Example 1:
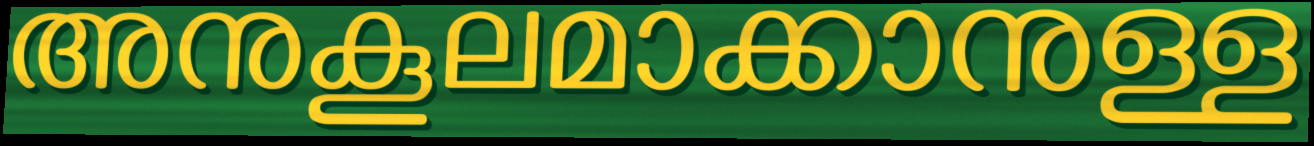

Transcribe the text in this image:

അനുകൂലമാക്കാനുള്ള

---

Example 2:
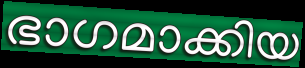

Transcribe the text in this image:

ഭാഗമാക്കിയ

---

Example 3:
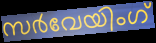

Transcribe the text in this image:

സർവേയിംഗ്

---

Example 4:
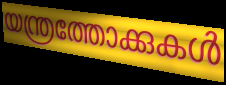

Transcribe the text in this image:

യന്ത്രത്തോക്കുകൾ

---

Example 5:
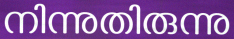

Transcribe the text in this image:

നിന്നുതിരുന്നു